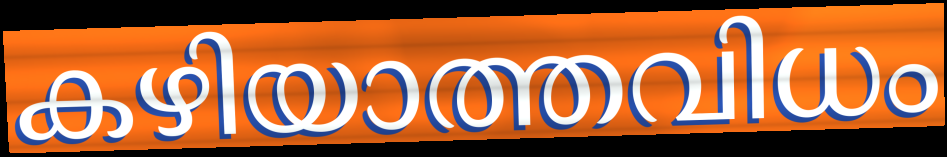
കഴിയാത്തവിധം